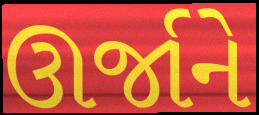
ઊર્જાને